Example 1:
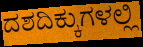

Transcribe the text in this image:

ದಶದಿಕ್ಕುಗಳಲ್ಲಿ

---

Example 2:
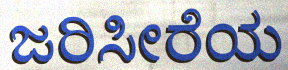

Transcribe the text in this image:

ಜರಿಸೀರೆಯ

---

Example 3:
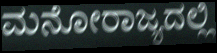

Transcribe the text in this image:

ಮನೋರಾಜ್ಯದಲ್ಲಿ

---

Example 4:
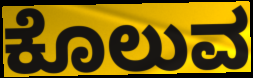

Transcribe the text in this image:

ಕೊಲುವ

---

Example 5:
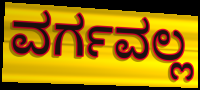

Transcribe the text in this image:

ವರ್ಗವಲ್ಲ